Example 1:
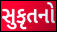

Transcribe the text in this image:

સુકૃતનો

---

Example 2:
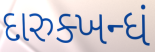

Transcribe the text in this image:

દારુક્ખન્ધં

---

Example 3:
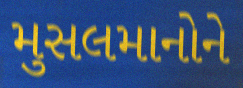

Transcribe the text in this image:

મુસલમાનોને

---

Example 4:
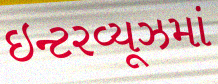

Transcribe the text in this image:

ઇન્ટરવ્યૂઝમાં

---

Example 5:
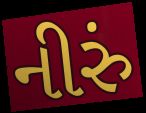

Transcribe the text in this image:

નીરું